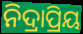
ନିଦ୍ରାପ୍ରିୟ